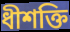
ধীশক্তি